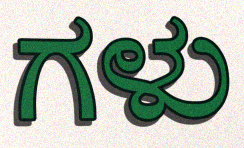
ಗಳು